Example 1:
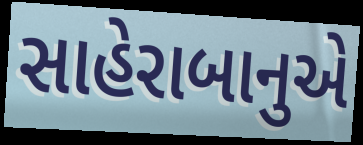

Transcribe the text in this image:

સાહેરાબાનુએ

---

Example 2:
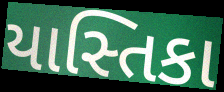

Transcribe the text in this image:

યાસ્તિકા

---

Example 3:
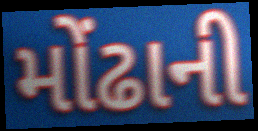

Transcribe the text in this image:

મોંઢાની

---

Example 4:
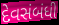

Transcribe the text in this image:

દેવસંબંધી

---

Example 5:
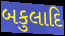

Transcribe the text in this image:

બકુલાદિ